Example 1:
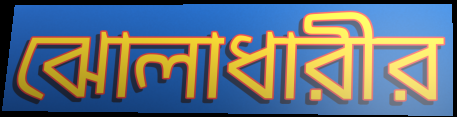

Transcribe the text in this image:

ঝোলাধারীর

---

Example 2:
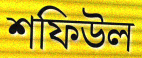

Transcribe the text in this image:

শফিউল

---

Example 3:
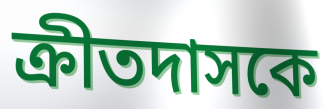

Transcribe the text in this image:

ক্রীতদাসকে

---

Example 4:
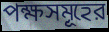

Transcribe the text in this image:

পক্ষসমূহের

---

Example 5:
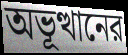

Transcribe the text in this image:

অভূত্থানের